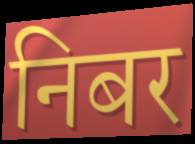
निबर